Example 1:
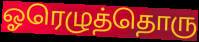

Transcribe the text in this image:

ஓரெழுத்தொரு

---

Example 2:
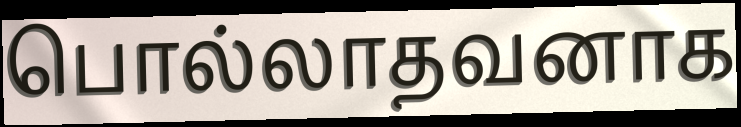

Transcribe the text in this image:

பொல்லாதவனாக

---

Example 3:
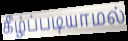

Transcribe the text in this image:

கீழ்ப்படியாமல்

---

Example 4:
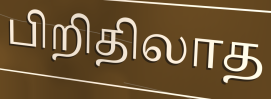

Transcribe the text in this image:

பிறிதிலாத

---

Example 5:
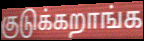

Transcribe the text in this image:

குடுக்கறாங்க